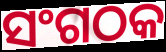
ସଂଗଠକ